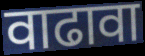
वाढावा